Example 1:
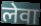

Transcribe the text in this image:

लेवा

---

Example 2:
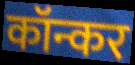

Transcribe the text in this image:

कॉन्कर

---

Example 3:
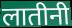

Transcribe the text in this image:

लातीनी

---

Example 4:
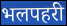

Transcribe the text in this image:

भलपहरी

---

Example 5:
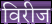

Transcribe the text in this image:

विरीज